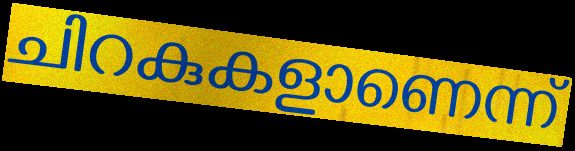
ചിറകുകളാണെന്ന്